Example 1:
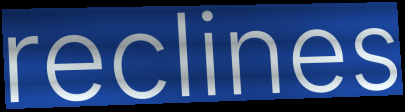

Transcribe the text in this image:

reclines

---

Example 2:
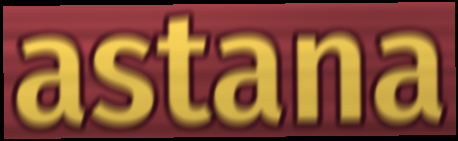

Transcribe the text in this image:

astana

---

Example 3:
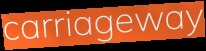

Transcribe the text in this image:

carriageway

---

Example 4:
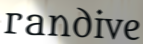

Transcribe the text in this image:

randive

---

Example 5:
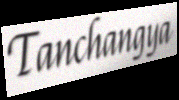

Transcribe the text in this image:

Tanchangya